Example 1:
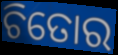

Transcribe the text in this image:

ଚିତୋର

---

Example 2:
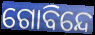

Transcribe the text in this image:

ଗୋବିନ୍ଦେ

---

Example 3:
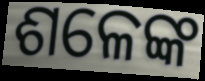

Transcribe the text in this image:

ଶଳେଙ୍କ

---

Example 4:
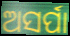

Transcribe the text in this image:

ଅସର୍ପା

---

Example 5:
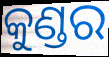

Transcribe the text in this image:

କୁଣ୍ଡର